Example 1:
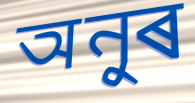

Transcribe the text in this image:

অনুৰ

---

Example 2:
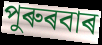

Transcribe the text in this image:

পুৰুৰবাৰ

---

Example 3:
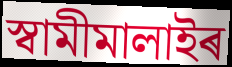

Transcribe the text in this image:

স্বামীমালাইৰ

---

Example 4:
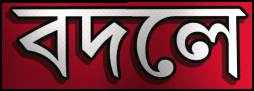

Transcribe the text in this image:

বদলে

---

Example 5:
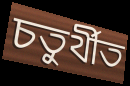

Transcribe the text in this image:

চতুৰ্থীত